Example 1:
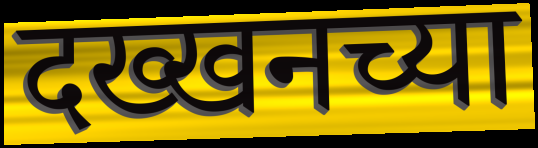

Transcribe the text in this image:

दख्खनच्या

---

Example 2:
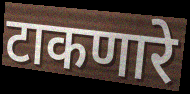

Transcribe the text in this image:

टाकणारे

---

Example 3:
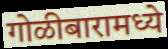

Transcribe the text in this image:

गोळीबारामध्ये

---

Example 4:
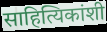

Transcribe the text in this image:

साहित्यिकांशी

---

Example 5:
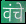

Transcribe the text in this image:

वंचे